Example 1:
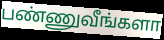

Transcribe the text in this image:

பண்ணுவீங்களா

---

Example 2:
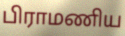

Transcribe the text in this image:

பிராமணிய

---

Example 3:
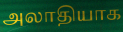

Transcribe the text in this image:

அலாதியாக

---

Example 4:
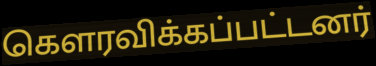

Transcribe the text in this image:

கௌரவிக்கப்பட்டனர்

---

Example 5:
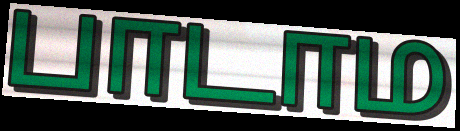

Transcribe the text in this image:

பாடாம